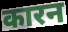
कारन